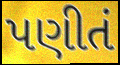
પણીતં